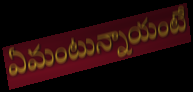
ఏమంటున్నాయంటే